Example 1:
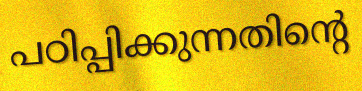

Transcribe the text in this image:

പഠിപ്പിക്കുന്നതിന്റെ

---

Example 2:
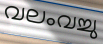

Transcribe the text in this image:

വലംവച്ചു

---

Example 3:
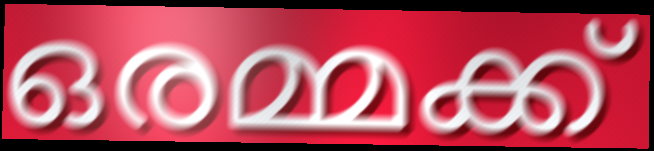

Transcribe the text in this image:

ഒരമ്മക്ക്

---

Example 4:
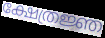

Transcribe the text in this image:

ക്ഷേത്രജ്ഞ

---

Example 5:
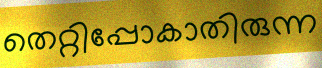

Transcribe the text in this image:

തെറ്റിപ്പോകാതിരുന്ന